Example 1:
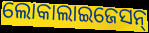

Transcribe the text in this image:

ଲୋକାଲାଇଜେସନ୍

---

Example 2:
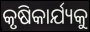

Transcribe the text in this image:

କୃଷିକାର୍ଯ୍ୟକୁ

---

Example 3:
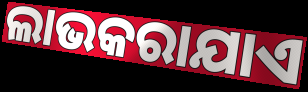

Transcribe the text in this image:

ଲାଭକରାଯାଏ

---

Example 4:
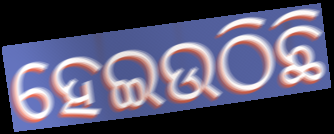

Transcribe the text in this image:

ହେଇଉଠିଛି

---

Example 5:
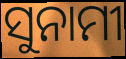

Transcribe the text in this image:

ସୁନାମୀ